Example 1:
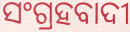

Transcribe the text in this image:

ସଂଗ୍ରହବାଦୀ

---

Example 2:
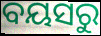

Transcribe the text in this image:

ବୟସରୁ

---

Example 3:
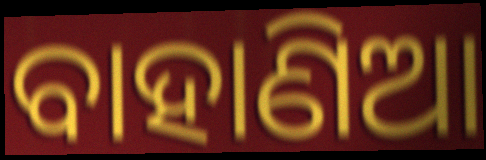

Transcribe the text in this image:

ବାହାଣିଆ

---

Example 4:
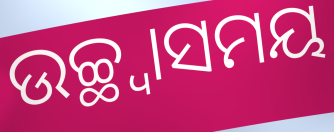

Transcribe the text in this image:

ଉଚ୍ଛ୍ୱାସମୟ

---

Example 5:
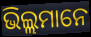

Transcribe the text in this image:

ଭିଲ୍ଲମାନେ